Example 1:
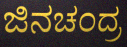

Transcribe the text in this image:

ಜಿನಚಂದ್ರ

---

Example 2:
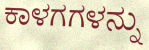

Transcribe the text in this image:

ಕಾಳಗಗಳನ್ನು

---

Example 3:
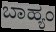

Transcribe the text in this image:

ಬಾಹ್ಯಂ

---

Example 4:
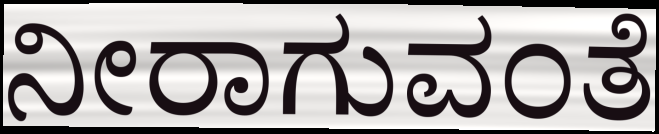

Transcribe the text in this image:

ನೀರಾಗುವಂತೆ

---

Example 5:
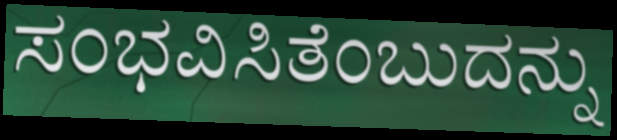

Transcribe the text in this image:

ಸಂಭವಿಸಿತೆಂಬುದನ್ನು